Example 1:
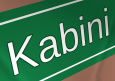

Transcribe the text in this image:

Kabini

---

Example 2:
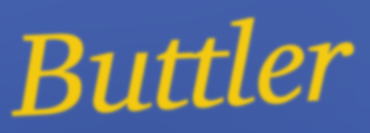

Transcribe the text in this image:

Buttler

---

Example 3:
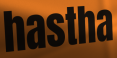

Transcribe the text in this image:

hastha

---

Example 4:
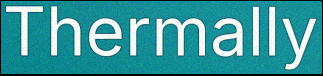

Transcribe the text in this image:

Thermally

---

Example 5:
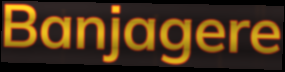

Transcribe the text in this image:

Banjagere